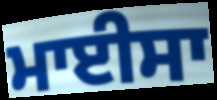
ਮਾਈਸਾ